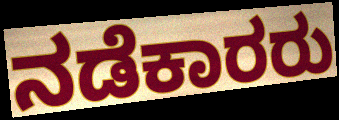
ನಡೆಕಾರರು